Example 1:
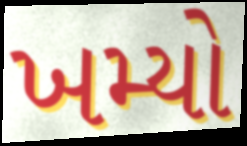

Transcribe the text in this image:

ખમ્યો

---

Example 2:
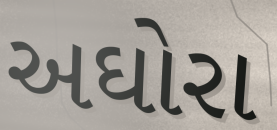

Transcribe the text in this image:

અઘોરા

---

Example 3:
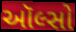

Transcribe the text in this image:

ઑલ્સો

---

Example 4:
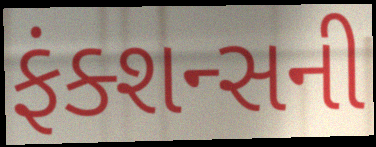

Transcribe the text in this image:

ફંક્શન્સની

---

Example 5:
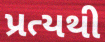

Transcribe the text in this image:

પ્રત્યથી